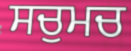
ਸਚੁਮਚ